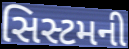
સિસ્ટમની